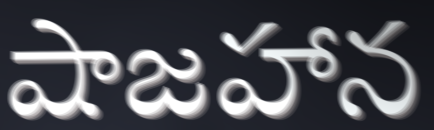
షాజహాన